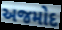
અજમોદ